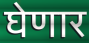
घेणार